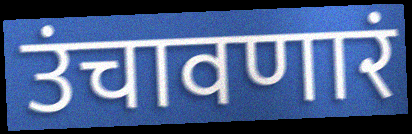
उंचावणारं